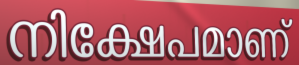
നിക്ഷേപമാണ്